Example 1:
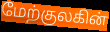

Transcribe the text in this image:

மேற்குலகின்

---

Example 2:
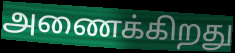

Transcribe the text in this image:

அணைக்கிறது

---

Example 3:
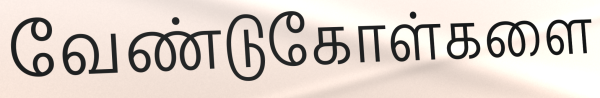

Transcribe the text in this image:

வேண்டுகோள்களை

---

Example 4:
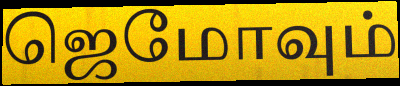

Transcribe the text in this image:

ஜெமோவும்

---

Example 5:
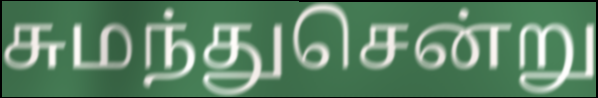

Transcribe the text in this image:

சுமந்துசென்று